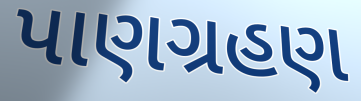
પાણગ્રહણ